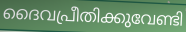
ദൈവപ്രീതിക്കുവേണ്ടി